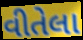
વીતેલા